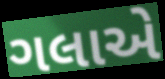
ગલાએ